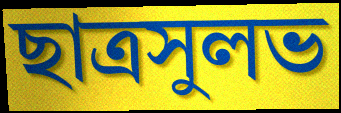
ছাত্রসুলভ